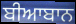
ਬੀਆਬਾਨ